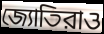
জ্যোতিরাও